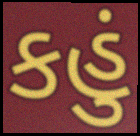
કહું